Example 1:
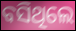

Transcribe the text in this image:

ବସିଥିଲେ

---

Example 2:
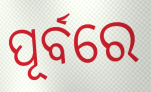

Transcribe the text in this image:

ପୂର୍ବରେ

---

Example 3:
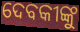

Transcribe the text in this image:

ଦେବକୀଙ୍କୁ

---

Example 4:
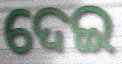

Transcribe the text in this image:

ଦେଇ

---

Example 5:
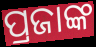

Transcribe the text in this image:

ପ୍ରଜାଙ୍କ